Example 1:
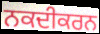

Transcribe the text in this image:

ਨਕਦੀਕਰਨ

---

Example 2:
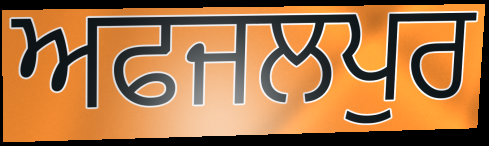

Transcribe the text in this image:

ਅਫਜਲਪੁਰ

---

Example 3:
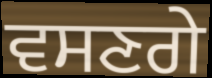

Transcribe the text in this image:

ਵਸਣਗੇ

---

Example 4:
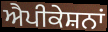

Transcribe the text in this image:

ਐਪੀਕੇਸ਼ਨਾਂ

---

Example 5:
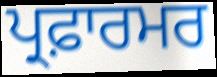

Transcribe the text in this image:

ਪ੍ਰਫ਼ਾਰਮਰ